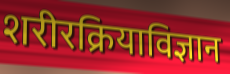
शरीरक्रियाविज्ञान